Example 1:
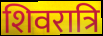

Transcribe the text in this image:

शिवरात्रि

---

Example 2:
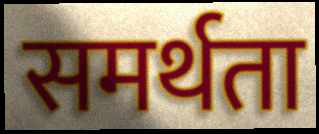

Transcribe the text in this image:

समर्थता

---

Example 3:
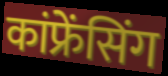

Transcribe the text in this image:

कांफ्रेंसिंग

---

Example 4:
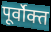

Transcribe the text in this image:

पूर्वोक्‍त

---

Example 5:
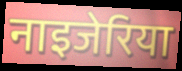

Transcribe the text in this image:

नाइजेरिया